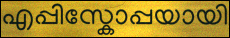
എപ്പിസ്കോപ്പയായി